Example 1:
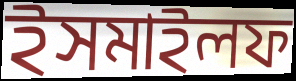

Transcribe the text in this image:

ইসমাইলফ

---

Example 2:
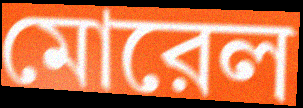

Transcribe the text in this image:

মোরেল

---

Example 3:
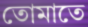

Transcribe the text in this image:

তোমাতে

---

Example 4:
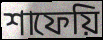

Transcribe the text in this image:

শাফেয়ি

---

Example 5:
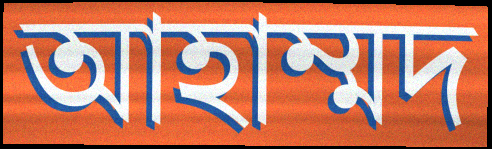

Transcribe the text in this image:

আহাম্মদ